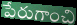
పేరుగాంచి